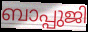
ബാപ്പുജി